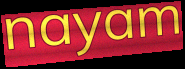
nayam